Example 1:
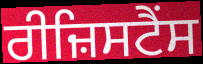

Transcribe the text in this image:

ਰੀਜ਼ਿਸਟੈਂਸ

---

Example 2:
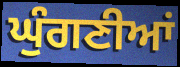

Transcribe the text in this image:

ਘੁੰਗਣੀਆਂ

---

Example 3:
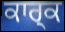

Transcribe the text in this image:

ਕਾਰ੍ਕ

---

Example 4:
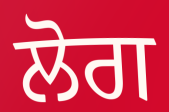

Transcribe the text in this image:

ਲੋਗ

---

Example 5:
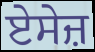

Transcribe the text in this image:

ਏਸੇਜ਼